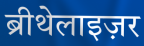
ब्रीथेलाइज़र